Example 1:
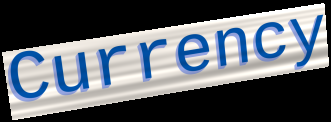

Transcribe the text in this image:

Currency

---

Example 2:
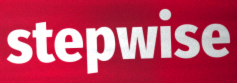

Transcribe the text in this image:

stepwise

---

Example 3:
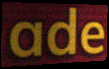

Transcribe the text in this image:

ade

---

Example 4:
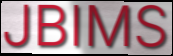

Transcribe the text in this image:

JBIMS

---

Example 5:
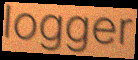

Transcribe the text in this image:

logger